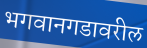
भगवानगडावरील